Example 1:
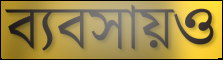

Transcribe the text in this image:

ব্যবসায়ও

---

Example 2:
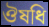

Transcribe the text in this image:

ঔষধি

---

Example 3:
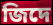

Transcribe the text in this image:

জিদে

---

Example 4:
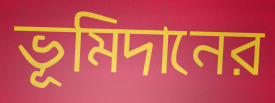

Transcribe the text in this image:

ভূমিদানের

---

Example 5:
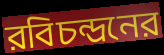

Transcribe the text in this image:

রবিচন্দ্রনের